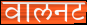
वालनट